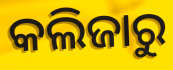
କଲିଜାରୁ